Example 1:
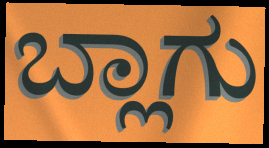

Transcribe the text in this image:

ಬ್ಲಾಗು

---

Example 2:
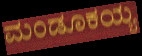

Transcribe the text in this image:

ಮಂಡೂಕಯ್ಯ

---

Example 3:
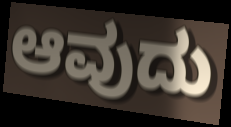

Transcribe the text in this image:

ಆವುದು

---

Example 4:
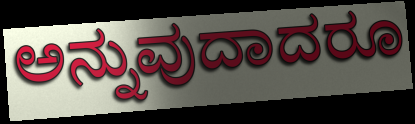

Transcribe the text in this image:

ಅನ್ನುವುದಾದರೂ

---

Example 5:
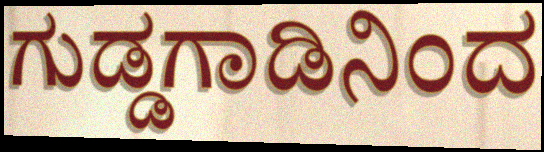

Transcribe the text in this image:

ಗುಡ್ಡಗಾಡಿನಿಂದ